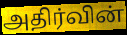
அதிர்வின்